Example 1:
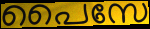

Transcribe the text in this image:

പൈസേ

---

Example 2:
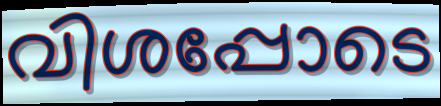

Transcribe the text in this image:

വിശപ്പോടെ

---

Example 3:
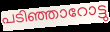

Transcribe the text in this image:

പടിഞ്ഞാറോട്ടു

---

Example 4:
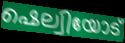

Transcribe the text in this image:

ഷെല്വിയോട്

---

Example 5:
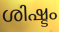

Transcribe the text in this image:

ശിഷ്ടം